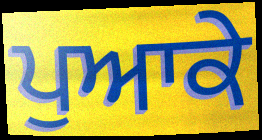
ਪੁਆਕੇ